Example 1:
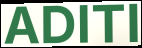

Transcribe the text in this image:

ADITI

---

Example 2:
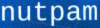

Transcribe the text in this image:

nutpam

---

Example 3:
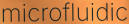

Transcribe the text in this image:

microfluidic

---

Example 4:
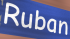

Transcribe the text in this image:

Ruban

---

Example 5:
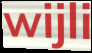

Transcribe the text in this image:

wijli